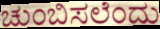
ಚುಂಬಿಸಲೆಂದು